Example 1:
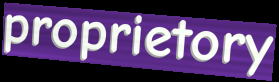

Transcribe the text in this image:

proprietory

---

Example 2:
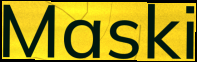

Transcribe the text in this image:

Maski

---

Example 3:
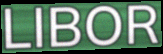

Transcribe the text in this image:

LIBOR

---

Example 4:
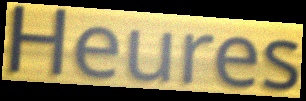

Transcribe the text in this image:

Heures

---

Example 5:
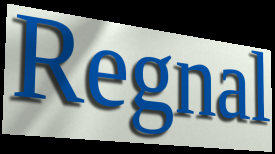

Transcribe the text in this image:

Regnal